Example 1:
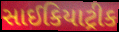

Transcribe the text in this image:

સાઈકિયાટ્રીક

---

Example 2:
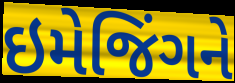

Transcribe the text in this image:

ઇમેજિંગને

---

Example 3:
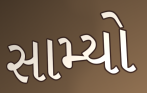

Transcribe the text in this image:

સામ્યો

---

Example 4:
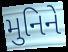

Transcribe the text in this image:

મુનિને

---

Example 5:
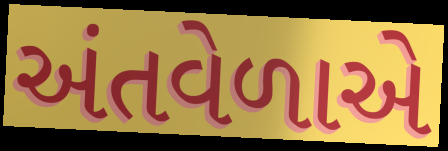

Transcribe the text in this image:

અંતવેળાએ